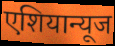
एशियान्यूज